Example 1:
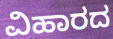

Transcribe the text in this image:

ವಿಹಾರದ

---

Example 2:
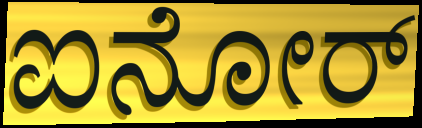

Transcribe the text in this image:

ಐನೋರ್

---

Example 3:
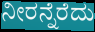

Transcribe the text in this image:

ನೀರನ್ನೆರೆದು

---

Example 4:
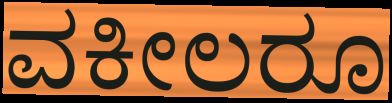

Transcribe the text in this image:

ವಕೀಲರೂ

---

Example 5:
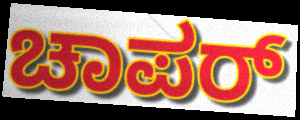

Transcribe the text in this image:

ಚಾಪರ್